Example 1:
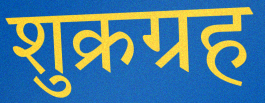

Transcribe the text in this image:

शुक्रग्रह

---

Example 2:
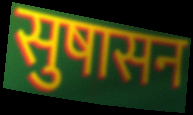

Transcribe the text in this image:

सुषासन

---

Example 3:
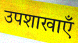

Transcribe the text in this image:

उपशाखाएँ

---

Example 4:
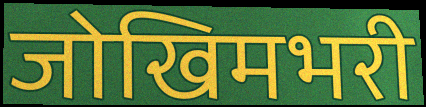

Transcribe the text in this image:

जोखिमभरी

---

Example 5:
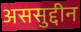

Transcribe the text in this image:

अससुद्दीन